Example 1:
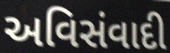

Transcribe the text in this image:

અવિસંવાદી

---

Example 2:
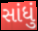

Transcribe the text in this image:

સાંધું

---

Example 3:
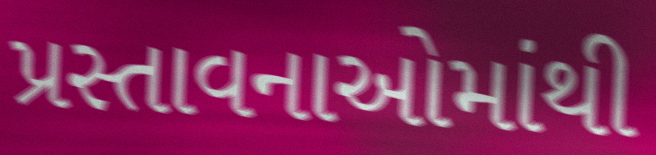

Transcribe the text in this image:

પ્રસ્તાવનાઓમાંથી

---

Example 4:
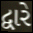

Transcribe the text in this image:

દ્વારે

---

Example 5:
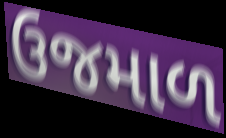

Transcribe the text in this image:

ઉજમાળ